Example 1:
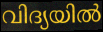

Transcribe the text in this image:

വിദ്യയിൽ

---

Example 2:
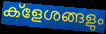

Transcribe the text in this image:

ക്ളേശങ്ങളും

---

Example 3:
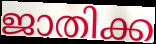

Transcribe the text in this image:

ജാതിക്ക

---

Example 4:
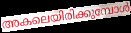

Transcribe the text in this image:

അകലെയിരിക്കുമ്പോൾ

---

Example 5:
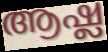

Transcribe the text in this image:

ആഷ്ല